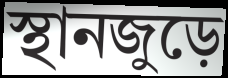
স্থানজুড়ে